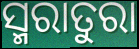
ସ୍ମରାତୁରା